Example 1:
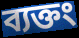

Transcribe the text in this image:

ব্যক্তং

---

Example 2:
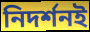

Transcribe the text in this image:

নিদর্শনই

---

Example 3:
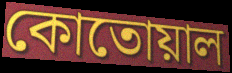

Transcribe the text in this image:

কোতোয়াল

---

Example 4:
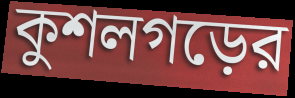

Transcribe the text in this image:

কুশলগড়ের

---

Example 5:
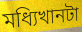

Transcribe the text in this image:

মধ্যিখানটা